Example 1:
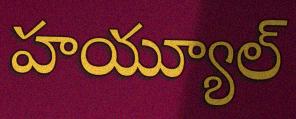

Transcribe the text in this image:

హయ్యూల్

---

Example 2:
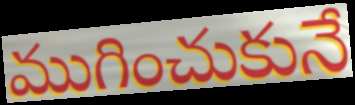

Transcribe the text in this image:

ముగించుకునే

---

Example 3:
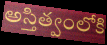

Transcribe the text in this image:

అస్తిత్వంలోకి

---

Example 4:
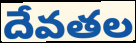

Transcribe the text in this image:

దేవతల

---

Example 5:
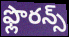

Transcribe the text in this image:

ఫ్లొరన్స్